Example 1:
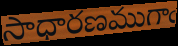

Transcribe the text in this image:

సాధారణముగాఁ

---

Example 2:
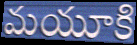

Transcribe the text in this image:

మయూకి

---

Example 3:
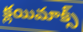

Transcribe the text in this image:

క్లయిమాక్స్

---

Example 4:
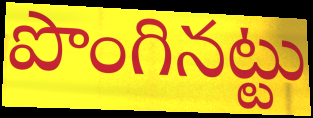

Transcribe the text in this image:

పొంగినట్టు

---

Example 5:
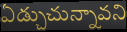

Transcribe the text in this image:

ఏడ్చుచున్నావని